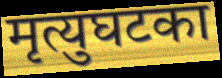
मृत्युघटका